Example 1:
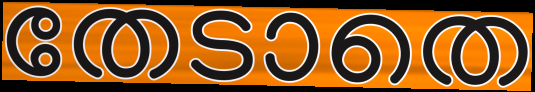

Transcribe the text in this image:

തേടാതെ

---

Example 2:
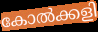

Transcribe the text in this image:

കോൽക്കളി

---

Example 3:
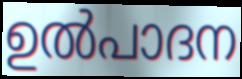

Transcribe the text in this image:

ഉൽപാദന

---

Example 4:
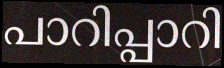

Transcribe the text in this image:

പാറിപ്പാറി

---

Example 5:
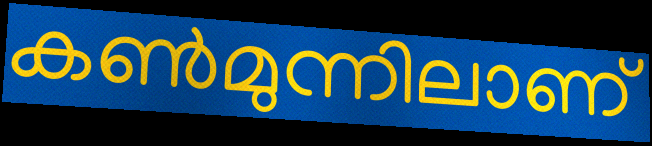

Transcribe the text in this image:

കൺമുന്നിലാണ്